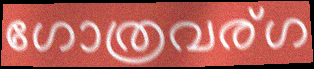
ഗോത്രവര്ഗ